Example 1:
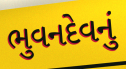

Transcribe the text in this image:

ભુવનદેવનું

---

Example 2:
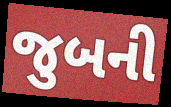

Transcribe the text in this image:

જુબની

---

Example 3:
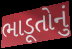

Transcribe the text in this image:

ભાડૂતોનું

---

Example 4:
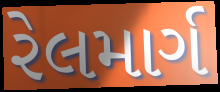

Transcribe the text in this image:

રેલમાર્ગ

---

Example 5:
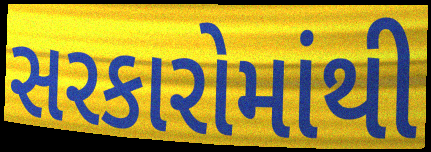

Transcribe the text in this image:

સરકારોમાંથી